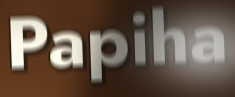
Papiha